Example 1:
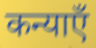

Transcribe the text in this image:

कन्याएँ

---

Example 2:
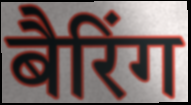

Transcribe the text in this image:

बैरिंग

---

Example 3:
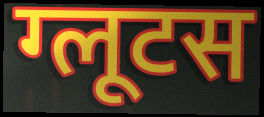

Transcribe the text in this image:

ग्लूटस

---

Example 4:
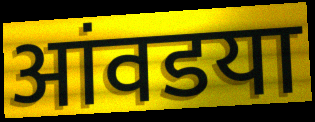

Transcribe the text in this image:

आंवडया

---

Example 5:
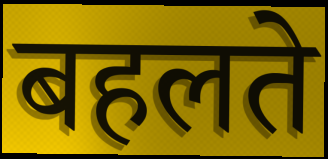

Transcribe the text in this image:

बहलते